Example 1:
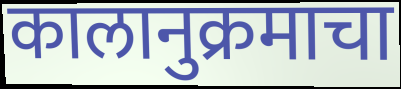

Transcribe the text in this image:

कालानुक्रमाचा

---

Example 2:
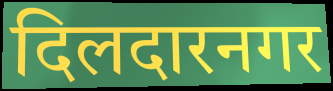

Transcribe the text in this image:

दिलदारनगर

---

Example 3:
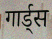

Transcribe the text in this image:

गार्ड्स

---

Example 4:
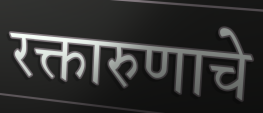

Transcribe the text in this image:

रक्तारुणाचे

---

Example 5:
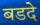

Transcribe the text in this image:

बडदे